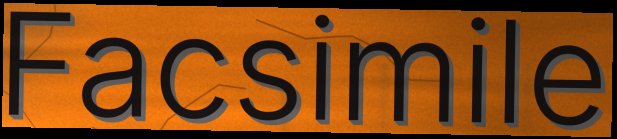
Facsimile